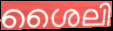
ശൈലി